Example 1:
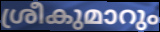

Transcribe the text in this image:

ശ്രീകുമാറും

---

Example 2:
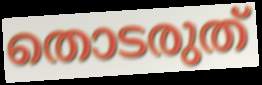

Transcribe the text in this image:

തൊടരുത്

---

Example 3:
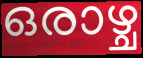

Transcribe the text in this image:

ഒരാഴ്ച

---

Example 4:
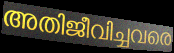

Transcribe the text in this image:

അതിജീവിച്ചവരെ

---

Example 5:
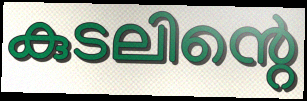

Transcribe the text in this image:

കുടലിന്റെ